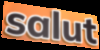
salut